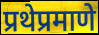
प्रथेप्रमाणे